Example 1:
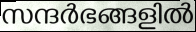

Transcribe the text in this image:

സന്ദർഭങ്ങളിൽ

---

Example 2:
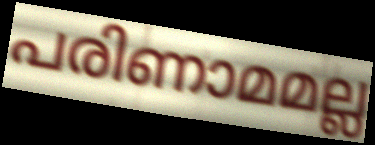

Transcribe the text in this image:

പരിണാമമല്ല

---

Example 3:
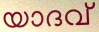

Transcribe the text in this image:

യാദവ്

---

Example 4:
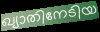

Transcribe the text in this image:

ഖ്യാതിനേടിയ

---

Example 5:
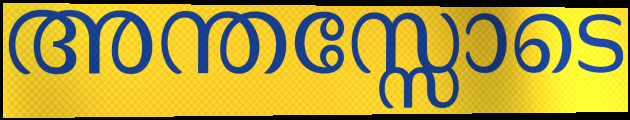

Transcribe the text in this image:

അന്തസ്സോടെ